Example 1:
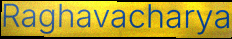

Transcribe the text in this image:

Raghavacharya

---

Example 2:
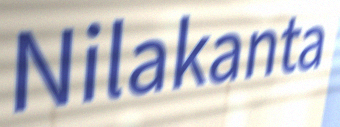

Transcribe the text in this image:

Nilakanta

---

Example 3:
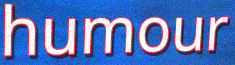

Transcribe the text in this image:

humour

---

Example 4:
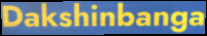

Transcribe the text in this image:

Dakshinbanga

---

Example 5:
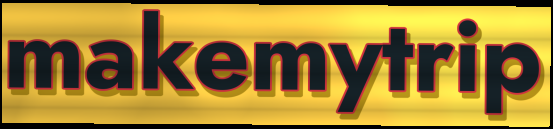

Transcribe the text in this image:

makemytrip